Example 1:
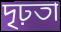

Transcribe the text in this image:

দৃঢ়তা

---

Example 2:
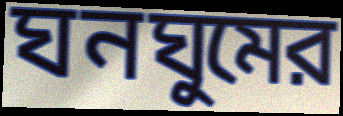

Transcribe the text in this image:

ঘনঘুমের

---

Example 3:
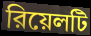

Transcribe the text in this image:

রিয়েলটি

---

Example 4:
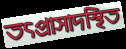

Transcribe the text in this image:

তৎপ্রাসাদস্থিত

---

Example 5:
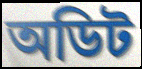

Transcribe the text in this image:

অডিট